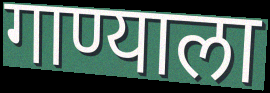
गाण्याला